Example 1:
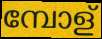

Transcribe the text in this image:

മ്പോള്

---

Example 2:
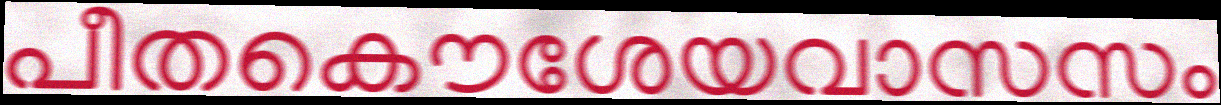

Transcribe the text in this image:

പീതകൌശേയവാസസം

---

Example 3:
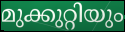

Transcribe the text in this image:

മുക്കുറ്റിയും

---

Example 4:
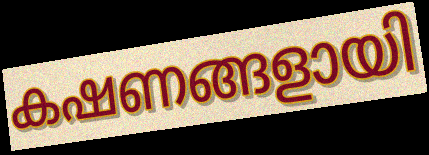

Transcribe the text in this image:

കഷണങ്ങളായി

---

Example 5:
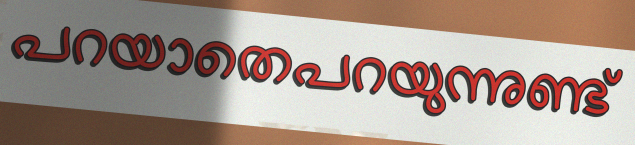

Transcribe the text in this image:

പറയാതെപറയുന്നുണ്ട്